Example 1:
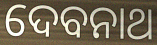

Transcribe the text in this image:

ଦେବନାଥ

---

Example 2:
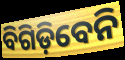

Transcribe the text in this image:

ବିଗିଡ଼ିବେନି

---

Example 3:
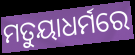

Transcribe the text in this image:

ମତୁୟାଧର୍ମରେ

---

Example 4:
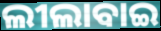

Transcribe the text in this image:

ଲୀଲାବାଇ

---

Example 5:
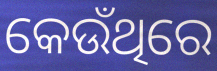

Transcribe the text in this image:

କେଉଁଥିରେ